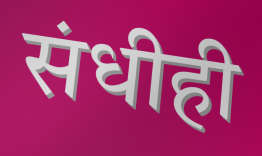
संधीही